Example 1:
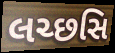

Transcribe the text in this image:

લચ્છસિ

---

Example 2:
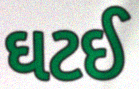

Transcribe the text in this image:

ઘટઈ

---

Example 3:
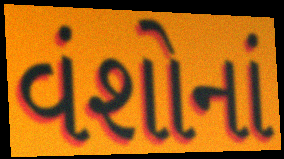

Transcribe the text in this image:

વંશોનાં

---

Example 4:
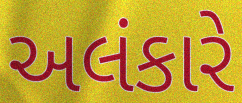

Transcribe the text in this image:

અલંકારે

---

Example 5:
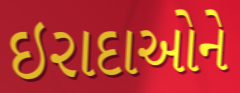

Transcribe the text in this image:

ઇરાદાઓને